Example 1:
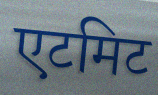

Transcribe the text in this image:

एटमिट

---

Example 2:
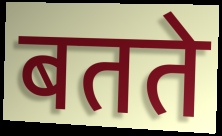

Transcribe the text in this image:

बतते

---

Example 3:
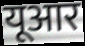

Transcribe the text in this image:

यूआर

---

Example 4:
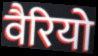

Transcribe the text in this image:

वैरियो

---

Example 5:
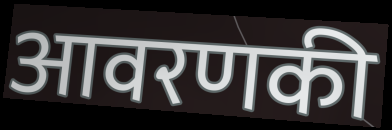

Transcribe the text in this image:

आवरणकी